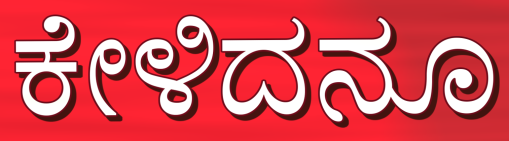
ಕೇಳಿದನೂ